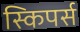
स्किपर्स